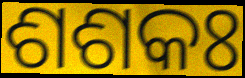
ଶଶକଃ